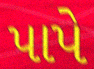
પાપે